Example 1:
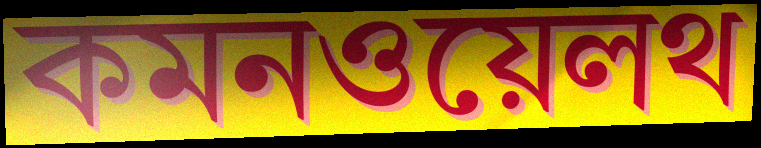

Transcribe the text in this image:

কমনওয়েলথ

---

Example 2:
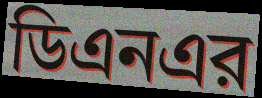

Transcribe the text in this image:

ডিএনএর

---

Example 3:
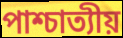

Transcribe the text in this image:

পাশ্চাত্যীয়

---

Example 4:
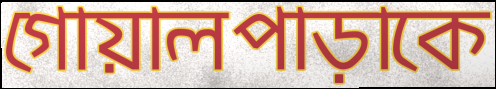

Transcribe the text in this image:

গোয়ালপাড়াকে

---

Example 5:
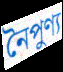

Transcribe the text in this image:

নৈপুণ্য